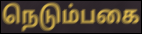
நெடும்பகை